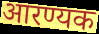
आरण्यक